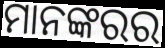
ମାନଙ୍କରର